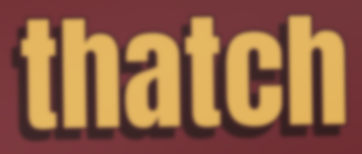
thatch